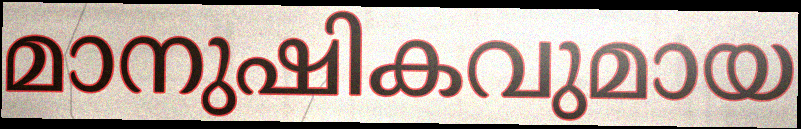
മാനുഷികവുമായ